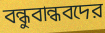
বন্ধুবান্ধবদের